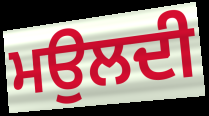
ਮਉਲਦੀ